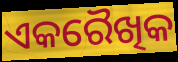
ଏକରୈଖିକ